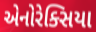
એનોરેક્સિયા